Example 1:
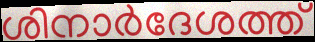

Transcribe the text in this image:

ശിനാർദേശത്ത്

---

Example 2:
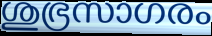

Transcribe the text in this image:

ശുഭ്രസാഗരം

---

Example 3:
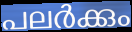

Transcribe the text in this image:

പലർക്കും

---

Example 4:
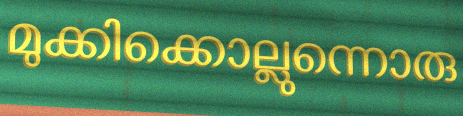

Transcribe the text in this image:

മുക്കിക്കൊല്ലുന്നൊരു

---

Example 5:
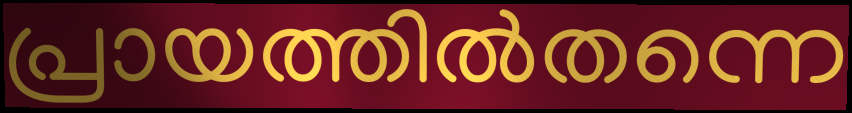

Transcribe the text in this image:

പ്രായത്തിൽതന്നെ